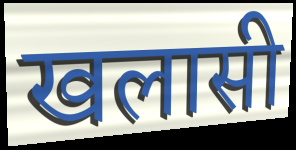
खलासी